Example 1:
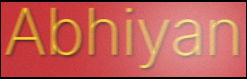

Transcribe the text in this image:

Abhiyan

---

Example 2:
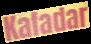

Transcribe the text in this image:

Kafadar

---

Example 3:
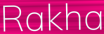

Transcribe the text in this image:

Rakha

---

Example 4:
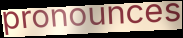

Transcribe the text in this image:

pronounces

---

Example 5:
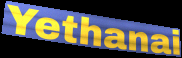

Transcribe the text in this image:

Yethanai